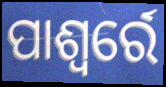
ପାଶ୍ୱର୍ରେ